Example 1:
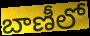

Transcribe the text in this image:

బాణీలో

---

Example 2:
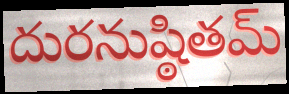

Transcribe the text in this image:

దురనుష్ఠితమ్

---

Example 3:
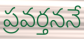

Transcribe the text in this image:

ప్రవర్తననే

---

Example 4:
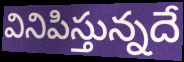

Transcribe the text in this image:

వినిపిస్తున్నదే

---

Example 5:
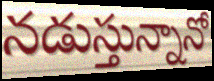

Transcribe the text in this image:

నడుస్తున్నానో